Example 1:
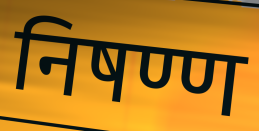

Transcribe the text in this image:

निषण्ण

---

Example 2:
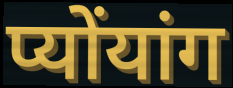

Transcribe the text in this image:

प्योंयांग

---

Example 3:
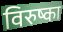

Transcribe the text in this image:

विरुष्का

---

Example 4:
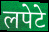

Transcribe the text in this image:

लपेटे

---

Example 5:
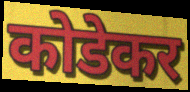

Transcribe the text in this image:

कोडेकर